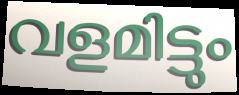
വളമിട്ടും